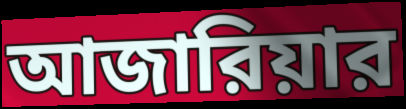
আজারিয়ার